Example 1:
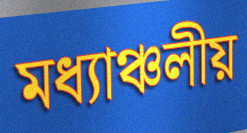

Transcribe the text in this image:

মধ্যাঞ্চলীয়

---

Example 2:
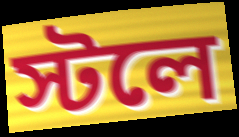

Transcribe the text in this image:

স্টলে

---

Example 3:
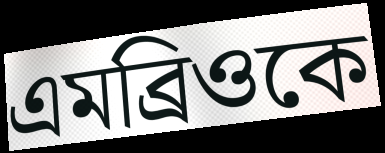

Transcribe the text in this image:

এমব্রিওকে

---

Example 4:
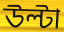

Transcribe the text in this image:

উল্টা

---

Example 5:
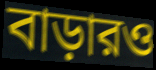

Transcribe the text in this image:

বাড়ারও